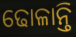
ଢୋଳାନ୍ତି